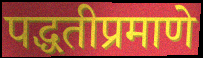
पद्धतीप्रमाणे